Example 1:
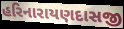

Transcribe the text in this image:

હરિનારાયણદાસજી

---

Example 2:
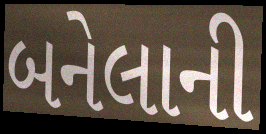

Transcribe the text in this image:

બનેલાની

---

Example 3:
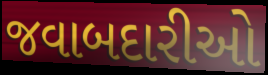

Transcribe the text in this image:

જવાબદારીઓ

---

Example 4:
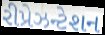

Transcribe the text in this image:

રીપ્રેઝન્ટેશન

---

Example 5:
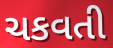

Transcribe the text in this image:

ચકવતી